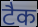
टैक